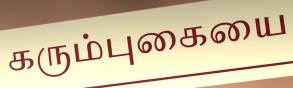
கரும்புகையை